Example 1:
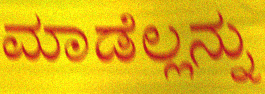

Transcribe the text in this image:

ಮಾಡೆಲ್ಲನ್ನು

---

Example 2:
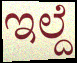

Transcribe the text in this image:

ಇಲ್ದೆ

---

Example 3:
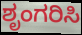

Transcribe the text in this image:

ಶೃಂಗರಿಸಿ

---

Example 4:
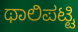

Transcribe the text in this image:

ಥಾಲಿಪಟ್ಟಿ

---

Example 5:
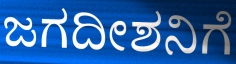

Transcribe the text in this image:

ಜಗದೀಶನಿಗೆ